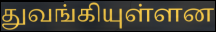
துவங்கியுள்ளன